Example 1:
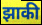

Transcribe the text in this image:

झाकी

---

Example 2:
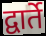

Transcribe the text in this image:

द्वार्ते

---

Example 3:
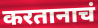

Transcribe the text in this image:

करतानाचं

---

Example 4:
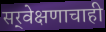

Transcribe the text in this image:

सर्वेक्षणाचाही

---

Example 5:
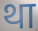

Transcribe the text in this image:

था